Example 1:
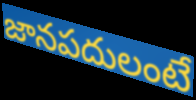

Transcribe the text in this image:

జానపదులంటే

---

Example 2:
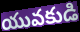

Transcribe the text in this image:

యువకుడి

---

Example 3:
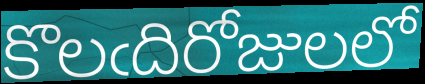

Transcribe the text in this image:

కొలఁదిరోజులలో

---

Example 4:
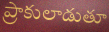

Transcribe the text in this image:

ప్రాకులాడుతూ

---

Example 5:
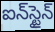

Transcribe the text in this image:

ఐన్‌స్టైన్